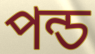
পন্ড